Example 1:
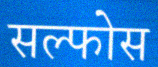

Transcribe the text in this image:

सल्फोस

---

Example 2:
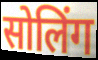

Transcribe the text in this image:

सोलिंग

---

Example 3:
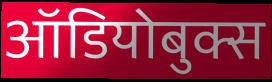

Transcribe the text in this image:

ऑडियोबुक्स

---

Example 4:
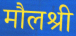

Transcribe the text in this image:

मौलश्री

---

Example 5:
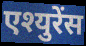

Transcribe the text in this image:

एश्युरेंस